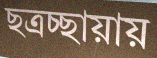
ছত্রচ্ছায়ায়